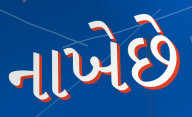
નાખેછે